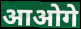
आओगे